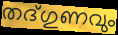
തദ്ഗുണവും